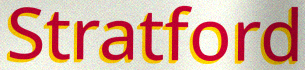
Stratford